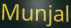
Munjal